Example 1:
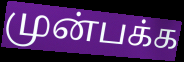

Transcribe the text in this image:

முன்பக்க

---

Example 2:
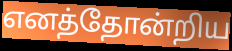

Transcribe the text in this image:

எனத்தோன்றிய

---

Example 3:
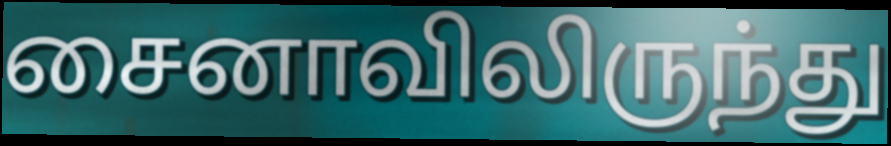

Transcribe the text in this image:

சைனாவிலிருந்து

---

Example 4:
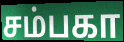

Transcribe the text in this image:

சம்பகா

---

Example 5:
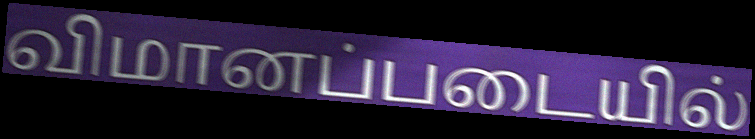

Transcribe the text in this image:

விமானப்படையில்